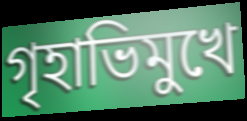
গৃহাভিমুখে